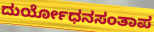
ದುರ್ಯೋಧನಸಂತಾಪ